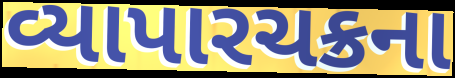
વ્યાપારચક્રના